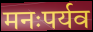
मनःपर्यव